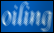
oiling